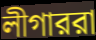
লীগাররা